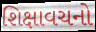
શિક્ષાવચનો